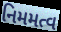
નિમમત્વ